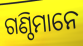
ଗଣ୍ଠିମାନେ